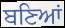
ਬਣਿਆਂ